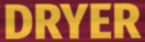
DRYER